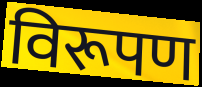
विरूपण